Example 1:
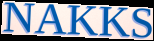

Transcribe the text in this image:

NAKKS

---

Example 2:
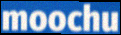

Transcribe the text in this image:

moochu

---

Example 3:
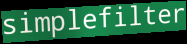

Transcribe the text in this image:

simplefilter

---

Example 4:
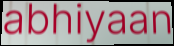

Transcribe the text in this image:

abhiyaan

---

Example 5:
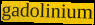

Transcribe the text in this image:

gadolinium